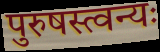
पुरुषस्त्वन्यः